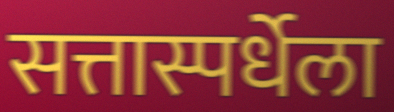
सत्तास्पर्धेला